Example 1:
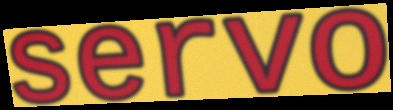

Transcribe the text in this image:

servo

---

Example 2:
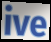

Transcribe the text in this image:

ive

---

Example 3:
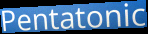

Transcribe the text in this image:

Pentatonic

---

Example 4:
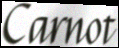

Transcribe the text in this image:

Carnot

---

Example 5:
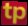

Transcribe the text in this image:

tp